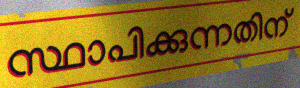
സ്ഥാപിക്കുന്നതിന്